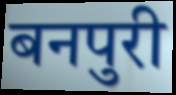
बनपुरी